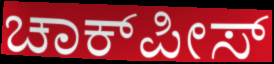
ಚಾಕ್‍ಪೀಸ್